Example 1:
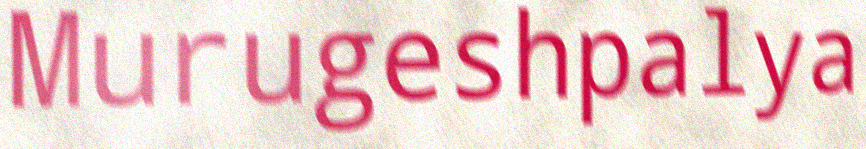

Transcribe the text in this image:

Murugeshpalya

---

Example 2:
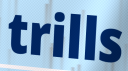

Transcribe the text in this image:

trills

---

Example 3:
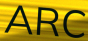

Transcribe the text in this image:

ARC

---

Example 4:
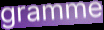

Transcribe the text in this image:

gramme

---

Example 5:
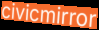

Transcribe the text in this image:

civicmirror